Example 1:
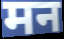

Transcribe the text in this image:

मन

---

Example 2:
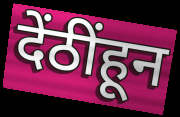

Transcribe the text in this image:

देंठींहून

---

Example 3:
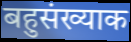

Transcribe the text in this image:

बहुसंख्याक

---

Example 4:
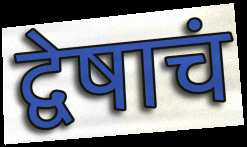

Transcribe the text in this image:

द्वेषाचं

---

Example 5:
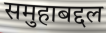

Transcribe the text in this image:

समुहाबद्दल